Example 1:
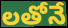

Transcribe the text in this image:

లతోనే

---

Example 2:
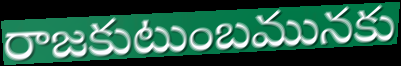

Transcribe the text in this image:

రాజకుటుంబమునకు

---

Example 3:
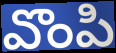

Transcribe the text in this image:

వొంపి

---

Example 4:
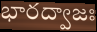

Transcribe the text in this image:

భారద్వాజః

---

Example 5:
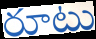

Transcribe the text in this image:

రూటు